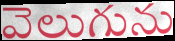
వెలుగును